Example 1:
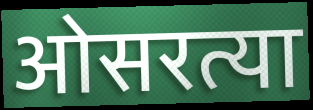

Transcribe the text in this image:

ओसरत्या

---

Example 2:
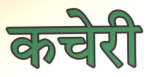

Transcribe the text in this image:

कचेरी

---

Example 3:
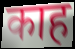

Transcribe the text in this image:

काह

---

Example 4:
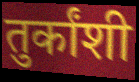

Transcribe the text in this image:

तुर्कांशी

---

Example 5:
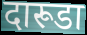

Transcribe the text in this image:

दारूडा